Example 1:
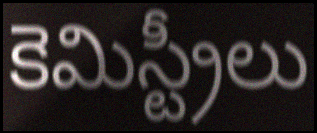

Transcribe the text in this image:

కెమిస్ట్రీలు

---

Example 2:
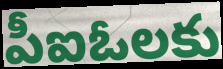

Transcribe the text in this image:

పీఐఓలకు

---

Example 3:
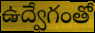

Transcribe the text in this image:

ఉద్వేగంతో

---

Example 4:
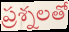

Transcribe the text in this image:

ప్రశ్నలతో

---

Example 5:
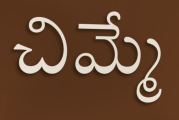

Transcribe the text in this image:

చిమ్మే